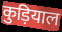
कुड़ियाल